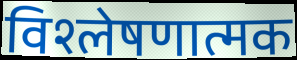
विश्लेषणात्मक